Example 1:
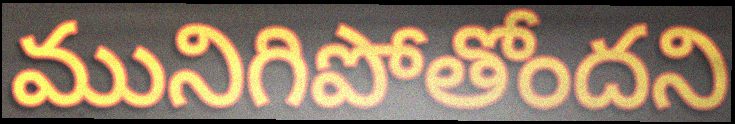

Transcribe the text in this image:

మునిగిపోతోందని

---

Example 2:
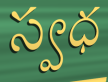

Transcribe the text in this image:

స్వధ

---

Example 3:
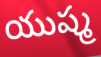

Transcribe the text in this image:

యుష్మ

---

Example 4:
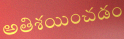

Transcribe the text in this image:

అతిశయించడం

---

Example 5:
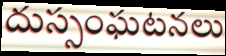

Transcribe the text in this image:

దుస్సంఘటనలు